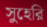
সুহেরি